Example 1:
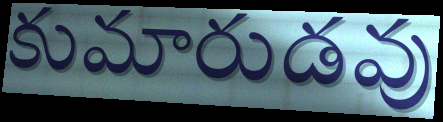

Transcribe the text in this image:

కుమారుడవు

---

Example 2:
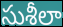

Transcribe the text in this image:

సుశీలా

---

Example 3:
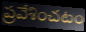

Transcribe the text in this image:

ప్రవేశించటం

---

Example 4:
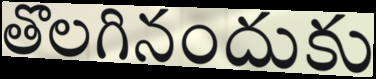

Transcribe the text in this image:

తొలగినందుకు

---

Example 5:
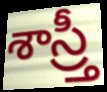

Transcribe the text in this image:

శాస్ర్తీ